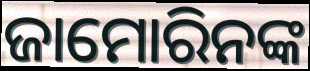
ଜାମୋରିନଙ୍କ